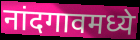
नांदगावमध्ये